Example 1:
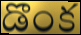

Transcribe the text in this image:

డొంక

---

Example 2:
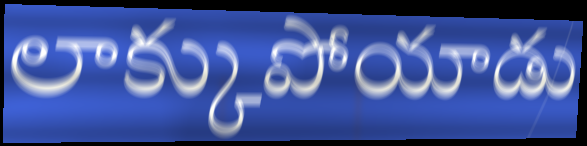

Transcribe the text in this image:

లాక్కుపోయాడు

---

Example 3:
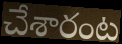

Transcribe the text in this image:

చేశారంట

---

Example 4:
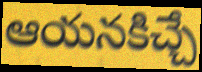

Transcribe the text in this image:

ఆయనకిచ్చే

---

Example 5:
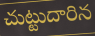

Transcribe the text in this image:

చుట్టుదారిన